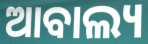
ଆବାଲ୍ୟ